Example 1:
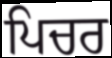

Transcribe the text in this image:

ਪਿਚਰ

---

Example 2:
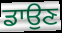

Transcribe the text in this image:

ਡਾਉਣ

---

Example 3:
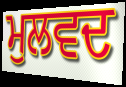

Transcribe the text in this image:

ਮੁਲਵਦ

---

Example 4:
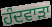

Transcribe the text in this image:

ਹੰਦਵਾੜਾ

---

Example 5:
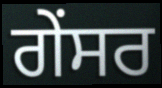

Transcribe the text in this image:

ਗੇਂਸਰ